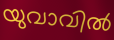
യുവാവിൽ